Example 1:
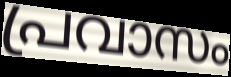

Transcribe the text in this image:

പ്രവാസം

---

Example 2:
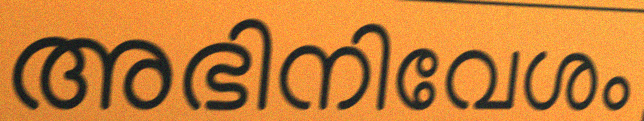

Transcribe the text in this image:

അഭിനിവേശം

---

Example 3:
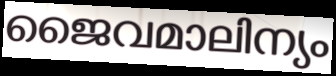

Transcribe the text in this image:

ജൈവമാലിന്യം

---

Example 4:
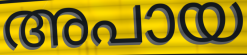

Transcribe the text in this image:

അപായ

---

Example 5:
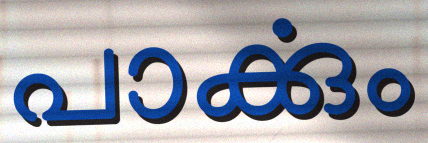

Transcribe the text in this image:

പാൎക്കും